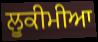
ਲੂਕੀਮੀਆ